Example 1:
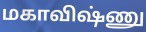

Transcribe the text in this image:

மகாவிஷ்ணு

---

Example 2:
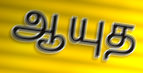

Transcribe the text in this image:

ஆயுத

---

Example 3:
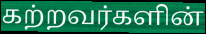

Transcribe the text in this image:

கற்றவர்களின்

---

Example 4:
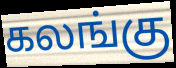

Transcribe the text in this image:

கலங்கு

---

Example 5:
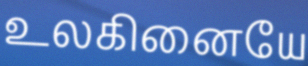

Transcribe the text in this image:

உலகினையே